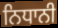
ਨਿਧਾਨੀ